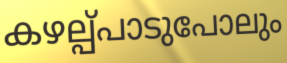
കഴല്പ്പാടുപോലും